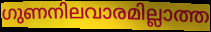
ഗുണനിലവാരമില്ലാത്ത